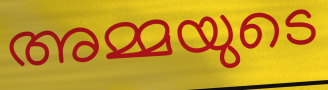
അമ്മയുടെ